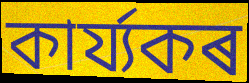
কাৰ্য্যকৰ